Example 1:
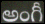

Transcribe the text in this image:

అంగీ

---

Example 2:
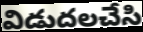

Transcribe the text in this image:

విడుదలచేసి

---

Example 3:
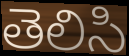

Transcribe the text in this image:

తెలిసి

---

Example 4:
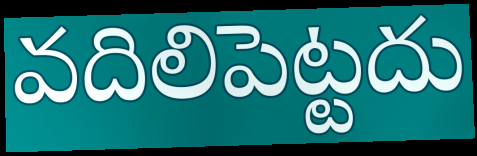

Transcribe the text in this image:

వదిలిపెట్టదు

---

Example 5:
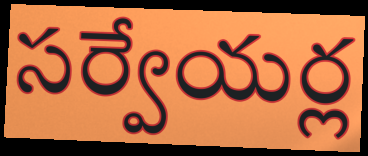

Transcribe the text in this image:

సర్వేయర్ల